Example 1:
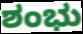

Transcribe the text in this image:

ಶಂಭು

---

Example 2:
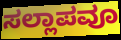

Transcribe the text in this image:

ಸಲ್ಲಾಪವೂ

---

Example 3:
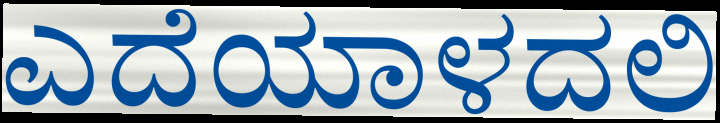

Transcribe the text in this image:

ಎದೆಯಾಳದಲಿ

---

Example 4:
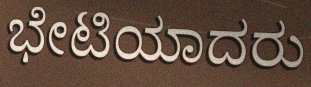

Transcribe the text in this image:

ಭೇಟಿಯಾದರು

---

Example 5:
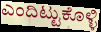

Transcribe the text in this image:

ಎಂದಿಟ್ಟುಕೊಳ್ಳಿ